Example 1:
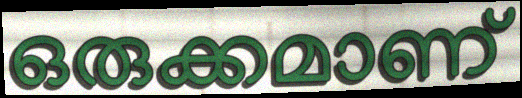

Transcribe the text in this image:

ഒരുക്കമാണ്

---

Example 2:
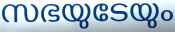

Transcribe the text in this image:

സഭയുടേയും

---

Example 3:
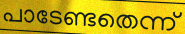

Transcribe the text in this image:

പാടേണ്ടതെന്ന്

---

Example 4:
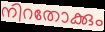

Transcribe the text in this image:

നിറതോക്കും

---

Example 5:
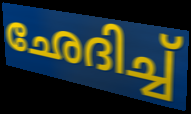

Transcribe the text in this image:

ഛേദിച്ച്